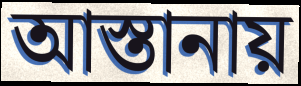
আস্তানায়